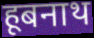
हूबनाथ